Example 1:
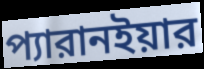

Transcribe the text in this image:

প্যারানইয়ার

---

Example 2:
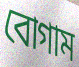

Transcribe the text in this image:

বোগাম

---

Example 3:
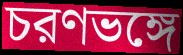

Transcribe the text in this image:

চরণভঙ্গে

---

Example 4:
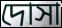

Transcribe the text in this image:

দোসা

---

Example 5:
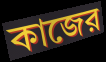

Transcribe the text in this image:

কাজের